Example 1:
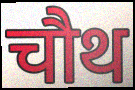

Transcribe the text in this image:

चौथ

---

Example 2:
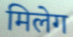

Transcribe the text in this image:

मिलेग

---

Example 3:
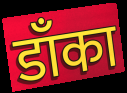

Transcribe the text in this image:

डाँका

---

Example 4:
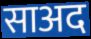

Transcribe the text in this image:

साअद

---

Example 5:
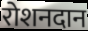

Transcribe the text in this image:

रोशनदान